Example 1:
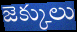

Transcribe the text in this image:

జెక్కులు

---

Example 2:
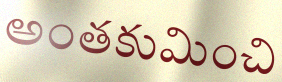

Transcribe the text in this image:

అంతకుమించి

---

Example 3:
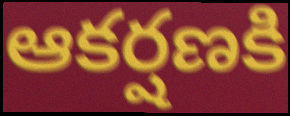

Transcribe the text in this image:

ఆకర్షణకి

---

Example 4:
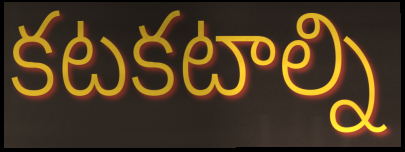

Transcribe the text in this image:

కటకటాల్ని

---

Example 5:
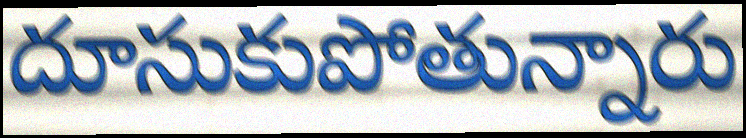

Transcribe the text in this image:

దూసుకుపోతున్నారు